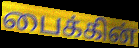
பைக்கின்